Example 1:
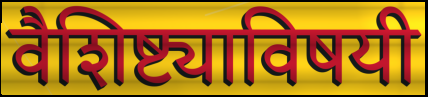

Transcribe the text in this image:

वैशिष्ट्याविषयी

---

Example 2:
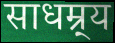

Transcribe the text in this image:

साधम्र्य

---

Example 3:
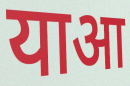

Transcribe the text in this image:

याआ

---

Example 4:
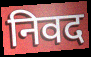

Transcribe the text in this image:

निवद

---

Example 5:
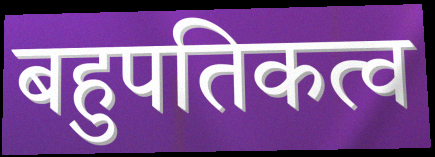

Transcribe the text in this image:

बहुपतिकत्व